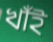
খাঁই